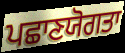
ਪਛਾਣਯੋਗਤਾ